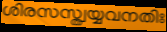
ശിരസസ്ത്വയ്യവനതിഃ